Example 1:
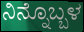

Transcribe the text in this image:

ನಿನ್ನೊಬ್ಬಳ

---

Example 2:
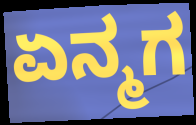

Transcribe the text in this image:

ಏನ್ಮಗ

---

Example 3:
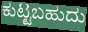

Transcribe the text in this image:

ಕುಟ್ಟಬಹುದು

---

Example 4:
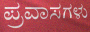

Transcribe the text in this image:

ಪ್ರವಾಸಗಳು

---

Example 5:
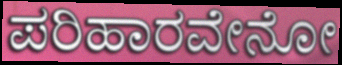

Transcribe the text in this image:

ಪರಿಹಾರವೇನೋ